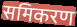
समिकरण